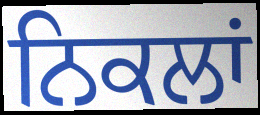
ਨਿਕਲਾਂ